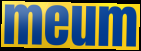
meum